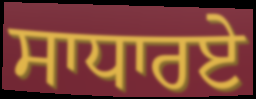
ਸਾਧਾਰਏ